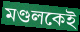
মণ্ডলকেই